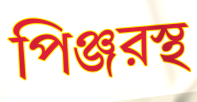
পিঞ্জরস্থ